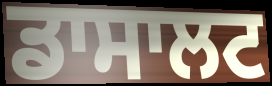
ਡਾਸਾਲਟ